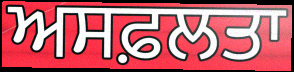
ਅਸਫ਼ਲਤਾ